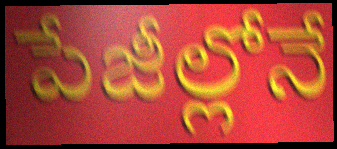
పేజీల్లోనే